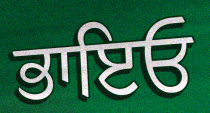
ਭਾਇਓ